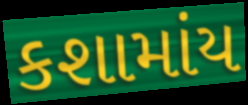
કશામાંય